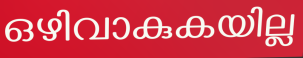
ഒഴിവാകുകയില്ല